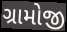
ગ્રામોજી